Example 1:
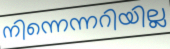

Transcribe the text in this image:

നിന്നെന്നറിയില്ല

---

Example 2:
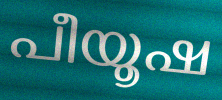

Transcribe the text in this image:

പീയൂഷ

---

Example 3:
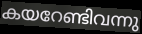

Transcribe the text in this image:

കയറേണ്ടിവന്നു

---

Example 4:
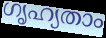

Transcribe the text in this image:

ഗൃഹ്യതാം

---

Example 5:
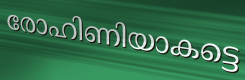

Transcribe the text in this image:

രോഹിണിയാകട്ടെ